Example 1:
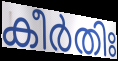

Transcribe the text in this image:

കീർതിഃ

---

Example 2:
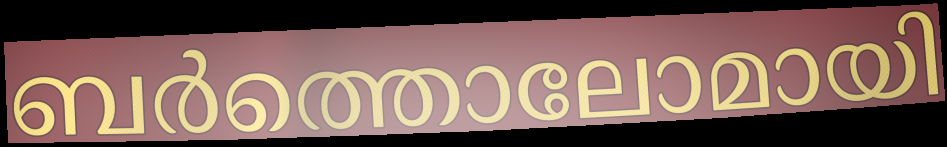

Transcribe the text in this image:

ബർത്തൊലോമായി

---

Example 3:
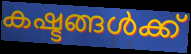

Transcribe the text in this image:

കഷ്ടങ്ങൾക്ക്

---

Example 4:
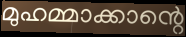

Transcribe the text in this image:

മുഹമ്മാക്കാന്റെ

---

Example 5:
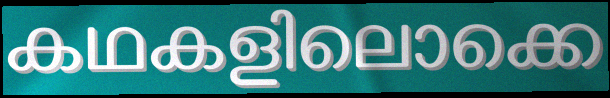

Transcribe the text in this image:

കഥകളിലൊക്കെ